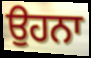
ਉਹਨਾ